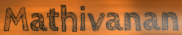
Mathivanan